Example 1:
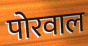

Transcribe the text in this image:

पोरवाल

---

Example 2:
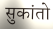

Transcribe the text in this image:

सुकांतो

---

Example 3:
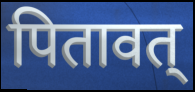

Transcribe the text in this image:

पितावत्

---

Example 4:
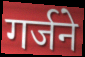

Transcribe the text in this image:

गर्जने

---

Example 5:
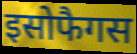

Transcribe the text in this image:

इसोफैगस